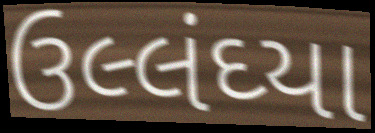
ઉલ્લંઘ્યા